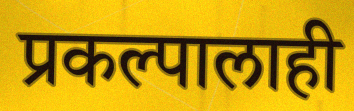
प्रकल्पालाही